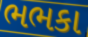
ભભકા